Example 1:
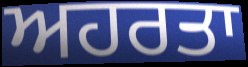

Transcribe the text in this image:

ਅਹਰਤਾ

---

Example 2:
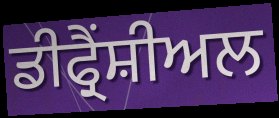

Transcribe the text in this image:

ਡੀਫ੍ਰੈਂਸ਼ੀਅਲ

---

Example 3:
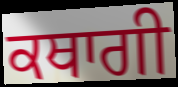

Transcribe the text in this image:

ਕਥਾਗੀ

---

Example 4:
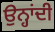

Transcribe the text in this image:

ਉਨ੍ਹਾਂਦੀ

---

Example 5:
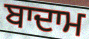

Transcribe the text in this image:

ਬਾਦਾਮ